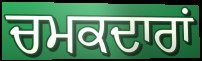
ਚਮਕਦਾਰਾਂ